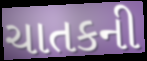
ચાતકની